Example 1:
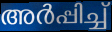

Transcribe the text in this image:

അർപ്പിച്ച്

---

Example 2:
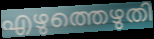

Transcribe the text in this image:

എഴുത്തെഴുതി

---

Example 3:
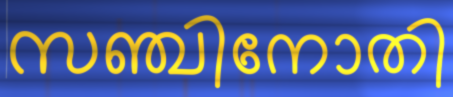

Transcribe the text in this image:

സഞ്ചിനോതി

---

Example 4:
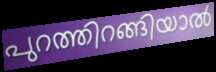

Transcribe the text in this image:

പുറത്തിറങ്ങിയാൽ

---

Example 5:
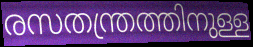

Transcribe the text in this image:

രസതന്ത്രത്തിനുള്ള